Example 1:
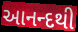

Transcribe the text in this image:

આનન્દથી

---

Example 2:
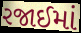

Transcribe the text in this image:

રજાઈમાં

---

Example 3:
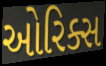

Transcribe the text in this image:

ઓરિક્સ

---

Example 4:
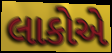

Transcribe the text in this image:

લાકોએ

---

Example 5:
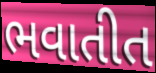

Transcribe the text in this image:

ભવાતીત